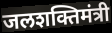
जलशक्तिमंत्री